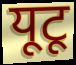
यूटू